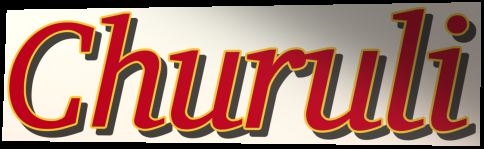
Churuli